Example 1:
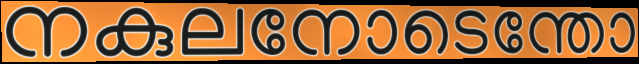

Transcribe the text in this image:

നകുലനോടെന്തോ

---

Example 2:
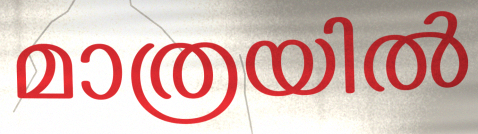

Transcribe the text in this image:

മാത്രയിൽ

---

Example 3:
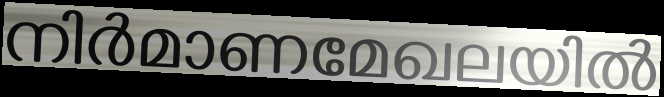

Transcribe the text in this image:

നിർമാണമേഖലയിൽ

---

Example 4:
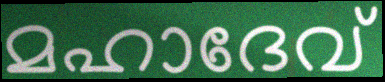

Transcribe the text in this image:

മഹാദേവ്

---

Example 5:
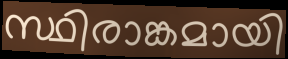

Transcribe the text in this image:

സ്ഥിരാങ്കമായി